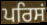
ਪਰਿਸਂ